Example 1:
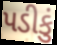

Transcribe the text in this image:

પડીકું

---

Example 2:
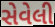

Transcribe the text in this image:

સેવેલી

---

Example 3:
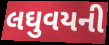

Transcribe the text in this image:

લઘુવયની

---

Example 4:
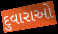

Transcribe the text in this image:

દુવારાઓ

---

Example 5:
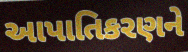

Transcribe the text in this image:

આપાતિકરણને